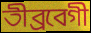
তীব্ৰবেগী